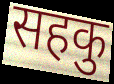
सहकु